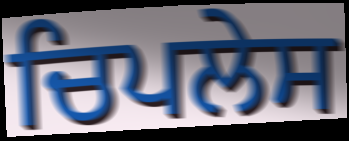
ਚਿਪਲੇਸ